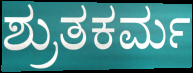
ಶ್ರುತಕರ್ಮ